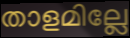
താളമില്ലേ